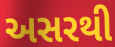
અસરથી